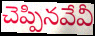
చెప్పినవేవీ